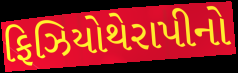
ફિઝિયોથેરાપીનો